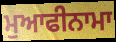
ਮੁਆਫੀਨਾਮਾ